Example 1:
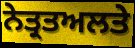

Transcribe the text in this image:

ਨੇਤ੍ਰਤਅਲਤੇ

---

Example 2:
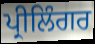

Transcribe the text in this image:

ਪ੍ਰੀਲਿੰਗਰ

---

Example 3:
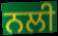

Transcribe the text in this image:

ਨਲੀ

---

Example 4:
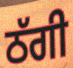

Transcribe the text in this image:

ਠੱਗੀ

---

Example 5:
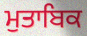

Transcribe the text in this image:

ਮੁਤਾਬਿਕ